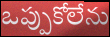
ఒప్పుకోలేను